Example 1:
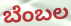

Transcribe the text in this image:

ಬೆಂಬಲ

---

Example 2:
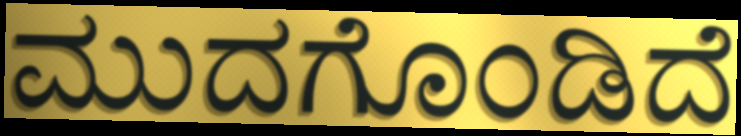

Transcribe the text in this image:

ಮುದಗೊಂಡಿದೆ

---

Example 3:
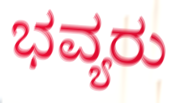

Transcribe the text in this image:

ಭವ್ಯರು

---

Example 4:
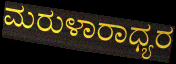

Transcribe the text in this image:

ಮರುಳಾರಾಧ್ಯರ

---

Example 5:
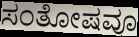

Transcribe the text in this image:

ಸಂತೋಷವೂ